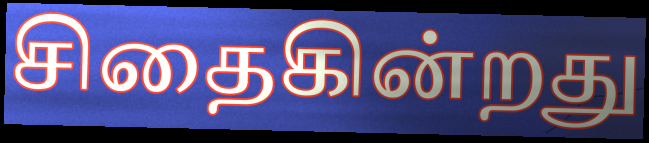
சிதைகின்றது